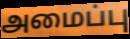
அமைப்பு